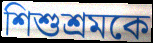
শিশুশ্রমকে